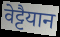
वेट्टैयान